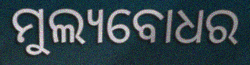
ମୁଲ୍ୟବୋଧର